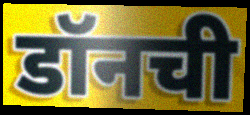
डॉनची